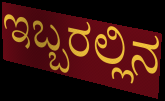
ಇಬ್ಬರಲ್ಲಿನ